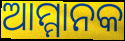
ଆମ୍ମାନକ